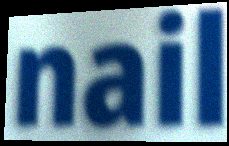
nail